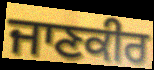
ਜਾਣਕੀਰ